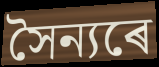
সৈন্যৰে